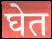
घेत